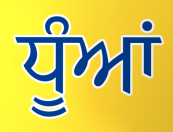
ਧੂੰਆਂ